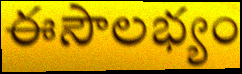
ఈసౌలభ్యం